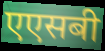
एएसबी